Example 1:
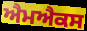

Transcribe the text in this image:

ਐਮਐਕਸ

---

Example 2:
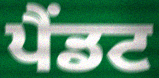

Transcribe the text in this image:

ਪੈਂਡਟ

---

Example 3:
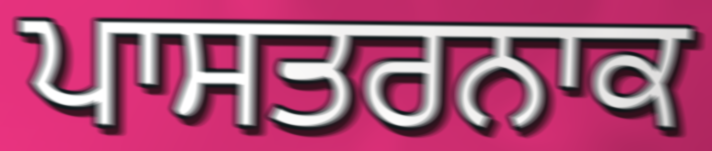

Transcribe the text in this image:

ਪਾਸਤਰਨਾਕ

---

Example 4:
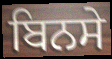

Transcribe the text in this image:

ਬਿਨਸੇ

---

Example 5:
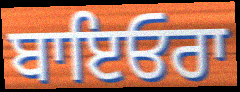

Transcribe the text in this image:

ਬਾਇਓਰਾ